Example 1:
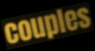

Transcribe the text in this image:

couples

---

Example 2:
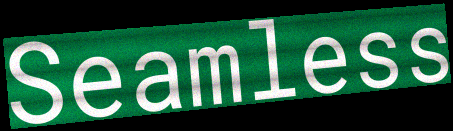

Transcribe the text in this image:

Seamless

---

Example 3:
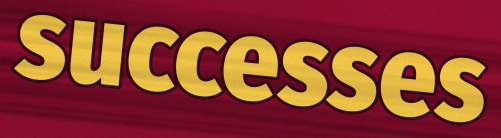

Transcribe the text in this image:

successes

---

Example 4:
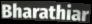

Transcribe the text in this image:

Bharathiar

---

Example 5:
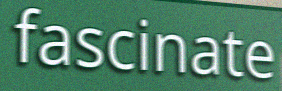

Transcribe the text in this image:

fascinate